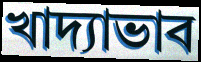
খাদ্যাভাব